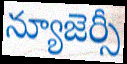
న్యూజెర్సీ